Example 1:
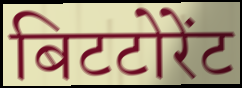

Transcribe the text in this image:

बिटटोरेंट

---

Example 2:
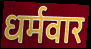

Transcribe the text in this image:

धर्मवार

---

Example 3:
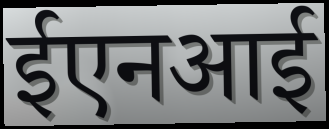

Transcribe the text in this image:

ईएनआई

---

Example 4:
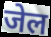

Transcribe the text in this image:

जेल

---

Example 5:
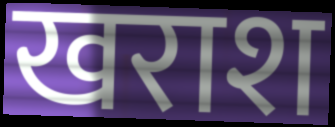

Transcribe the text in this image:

खराश